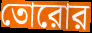
তোরোর